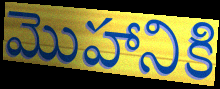
మొహానికి